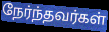
நேர்ந்தவர்கள்